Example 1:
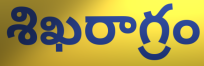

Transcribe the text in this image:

శిఖరాగ్రం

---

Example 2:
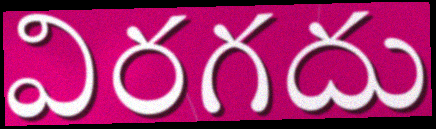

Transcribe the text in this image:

విరగదు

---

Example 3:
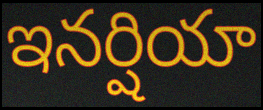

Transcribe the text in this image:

ఇనర్షియా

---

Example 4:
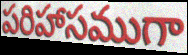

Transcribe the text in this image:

పరిహాసముగా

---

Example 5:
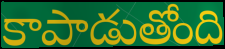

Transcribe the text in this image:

కాపాడుతోంది